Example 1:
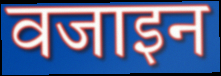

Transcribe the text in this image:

वजाइन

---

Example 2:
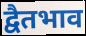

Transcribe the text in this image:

द्वैतभाव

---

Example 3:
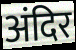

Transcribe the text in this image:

अंदिर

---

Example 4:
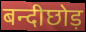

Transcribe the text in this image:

बन्दीछोड़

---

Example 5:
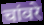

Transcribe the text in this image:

चांवरे